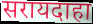
सरायदाहा